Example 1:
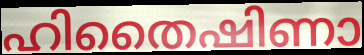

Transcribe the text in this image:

ഹിതൈഷിണാ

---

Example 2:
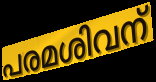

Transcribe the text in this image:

പരമശിവന്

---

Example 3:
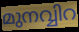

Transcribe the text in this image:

മുനവ്വിറ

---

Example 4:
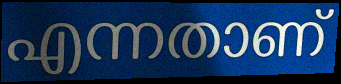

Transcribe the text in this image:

എന്നതാണ്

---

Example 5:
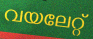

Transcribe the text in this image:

വയലേറ്റ്